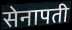
सेनापती